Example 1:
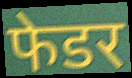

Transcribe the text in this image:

फेडर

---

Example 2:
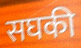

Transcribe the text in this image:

सघकी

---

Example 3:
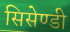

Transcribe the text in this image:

सिसेण्डी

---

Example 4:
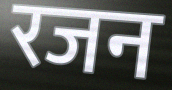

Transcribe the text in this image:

रजन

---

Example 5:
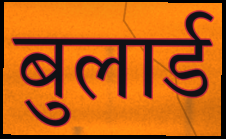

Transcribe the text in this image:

बुलार्ड